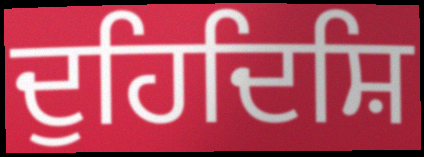
ਦੁਹਿਦਿਸ਼ਿ